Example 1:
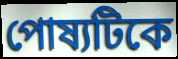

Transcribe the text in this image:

পোষ্যটিকে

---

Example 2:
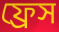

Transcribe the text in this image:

ফ্রেস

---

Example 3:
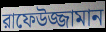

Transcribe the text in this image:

রাফেউজ্জামান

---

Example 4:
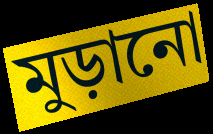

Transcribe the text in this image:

মুড়ানো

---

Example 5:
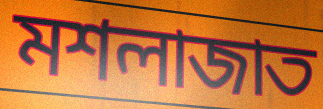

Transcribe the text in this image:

মশলাজাত